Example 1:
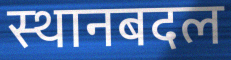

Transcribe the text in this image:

स्थानबदल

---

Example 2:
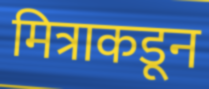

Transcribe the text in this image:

मित्राकडून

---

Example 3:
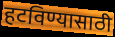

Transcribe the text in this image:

हटविण्यासाठी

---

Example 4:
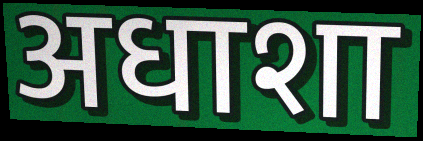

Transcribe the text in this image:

अधाशा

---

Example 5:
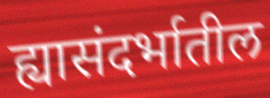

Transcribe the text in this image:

ह्यासंदर्भातील